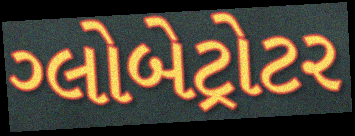
ગ્લોબેટ્રોટર